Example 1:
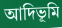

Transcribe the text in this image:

আদিভূমি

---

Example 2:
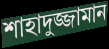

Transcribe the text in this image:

শাহাদুজ্জামান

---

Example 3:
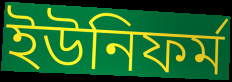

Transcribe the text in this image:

ইউনিফর্ম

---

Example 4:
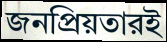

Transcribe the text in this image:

জনপ্রিয়তারই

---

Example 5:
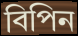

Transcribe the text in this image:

বিপিন